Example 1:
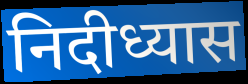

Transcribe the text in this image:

निदीध्यास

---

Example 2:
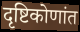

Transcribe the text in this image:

दृष्टिकोणांत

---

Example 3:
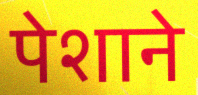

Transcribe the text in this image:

पेशाने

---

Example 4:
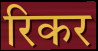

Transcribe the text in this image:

रिकर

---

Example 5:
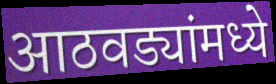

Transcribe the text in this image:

आठवड्यांमध्ये